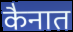
कैनात